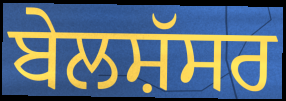
ਬੇਲਸ਼ੱਸਰ